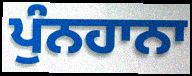
ਪੁੰਨਹਾਨਾ